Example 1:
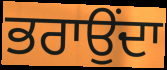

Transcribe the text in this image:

ਭਰਾਉਂਦਾ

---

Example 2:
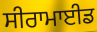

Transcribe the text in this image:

ਸੀਰਾਮਾਈਡ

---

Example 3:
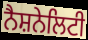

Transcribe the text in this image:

ਨੈਸ਼ਨੇਲਿਟੀ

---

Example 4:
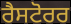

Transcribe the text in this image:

ਰੈਸਟੋਰਰ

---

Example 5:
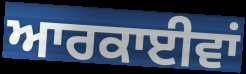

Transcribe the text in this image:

ਆਰਕਾਈਵਾਂ